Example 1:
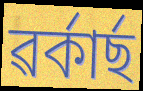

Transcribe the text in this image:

ৱৰ্কাৰ্ছ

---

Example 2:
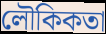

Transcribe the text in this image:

লৌকিকতা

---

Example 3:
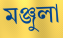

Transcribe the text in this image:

মঞ্জুলা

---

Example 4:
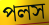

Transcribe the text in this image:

পলস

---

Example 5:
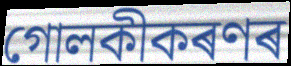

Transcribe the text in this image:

গোলকীকৰণৰ